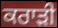
ਕਰਾੜੀ